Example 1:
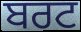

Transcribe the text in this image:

ਬਰਟ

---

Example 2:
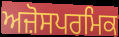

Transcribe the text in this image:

ਅਜ਼ੋਸਪਰਮਿਕ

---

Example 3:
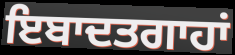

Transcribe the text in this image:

ਇਬਾਦਤਗਾਹਾਂ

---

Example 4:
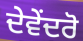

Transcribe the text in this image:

ਦੇਵੇਂਦਰੋ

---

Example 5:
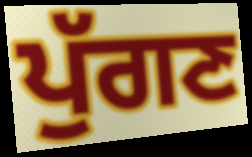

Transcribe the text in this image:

ਪੁੱਗਣ